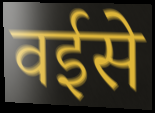
वईसे